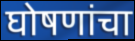
घोषणांचा